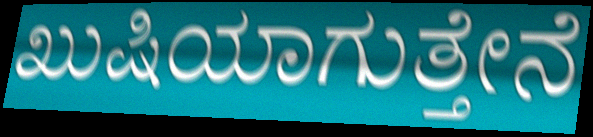
ಖುಷಿಯಾಗುತ್ತೇನೆ